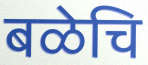
बळेचि